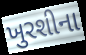
ખુરશીના